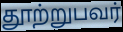
தூற்றுபவர்